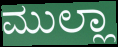
ಮುಲ್ಲಾ